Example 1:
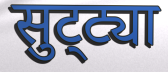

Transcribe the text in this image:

सुट्‌ट्या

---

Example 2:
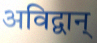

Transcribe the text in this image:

अविद्वान्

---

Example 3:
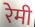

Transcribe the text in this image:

रेमी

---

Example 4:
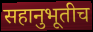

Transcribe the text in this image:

सहानुभूतीच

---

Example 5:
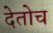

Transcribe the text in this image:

देतोच